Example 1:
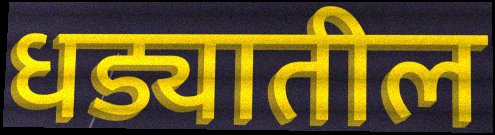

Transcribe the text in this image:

धड्यातील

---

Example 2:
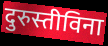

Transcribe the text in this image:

दुरुस्तीविना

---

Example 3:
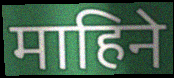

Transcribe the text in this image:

माहिने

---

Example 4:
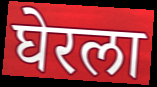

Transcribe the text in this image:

घेरला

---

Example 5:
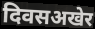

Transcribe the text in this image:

दिवसअखेर